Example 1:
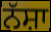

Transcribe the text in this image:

ਨੱਸ਼ਾ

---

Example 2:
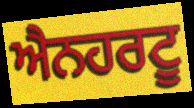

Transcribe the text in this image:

ਐਨਹਰਟੂ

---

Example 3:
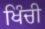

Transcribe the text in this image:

ਖਿੰਚੀ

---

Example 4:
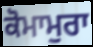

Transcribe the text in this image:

ਕੋਮਾਮੁਰਾ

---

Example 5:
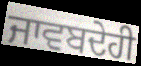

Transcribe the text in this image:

ਜਾਵਬਦੇਹੀ